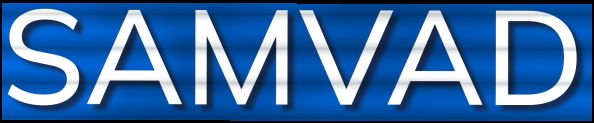
SAMVAD